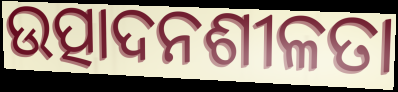
ଉତ୍ପାଦନଶୀଳତା